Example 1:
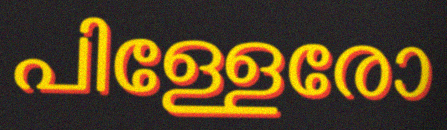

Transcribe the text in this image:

പിള്ളേരോ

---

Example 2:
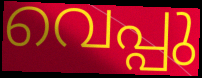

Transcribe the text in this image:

വെപ്പു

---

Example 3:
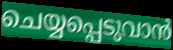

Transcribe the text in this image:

ചെയ്യപ്പെടുവാൻ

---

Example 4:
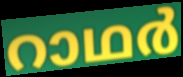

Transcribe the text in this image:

റാഥർ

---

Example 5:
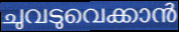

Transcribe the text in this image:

ചുവടുവെക്കാൻ